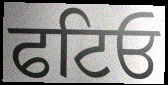
ਫਟਿਓ